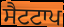
ਸੈਟਟਾਪ